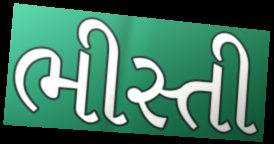
ભીસ્તી